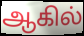
ஆகில்